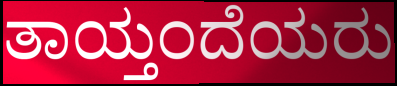
ತಾಯ್ತಂದೆಯರು